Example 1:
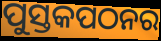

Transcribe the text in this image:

ପୁସ୍ତକପଠନର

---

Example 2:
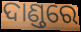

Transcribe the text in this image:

ଦାଣ୍ଡରେ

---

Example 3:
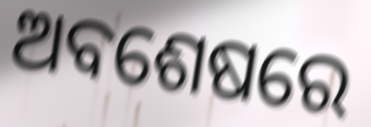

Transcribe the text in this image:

ଅବଶେଷରେ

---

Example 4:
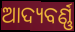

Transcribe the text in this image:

ଆଦ୍ୟବର୍ଣ୍ଣ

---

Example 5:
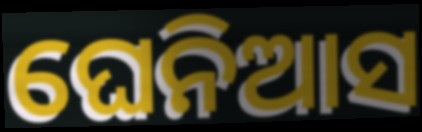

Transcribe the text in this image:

ଘେନିଆସ